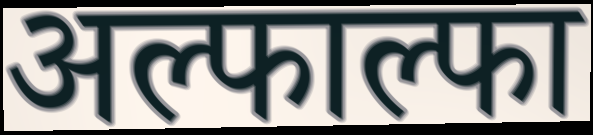
अल्फाल्फा